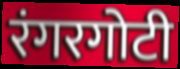
रंगरगोटी